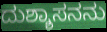
ದುಶ್ಶಾಸನನು